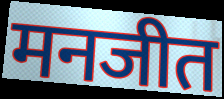
मनजीत